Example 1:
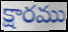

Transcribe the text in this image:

క్షారము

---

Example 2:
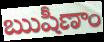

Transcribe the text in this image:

ఋషీణాం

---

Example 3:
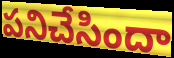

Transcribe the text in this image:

పనిచేసిందా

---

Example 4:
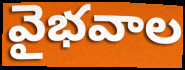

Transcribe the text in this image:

వైభవాల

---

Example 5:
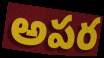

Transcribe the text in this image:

అపర